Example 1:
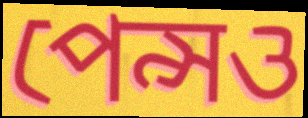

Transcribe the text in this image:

পেন্সও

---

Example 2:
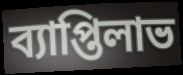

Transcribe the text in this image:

ব্যাপ্তিলাভ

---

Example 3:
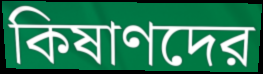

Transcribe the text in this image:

কিষাণদের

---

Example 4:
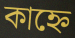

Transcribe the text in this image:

কাহ্নে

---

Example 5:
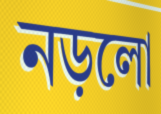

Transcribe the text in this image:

নড়লো